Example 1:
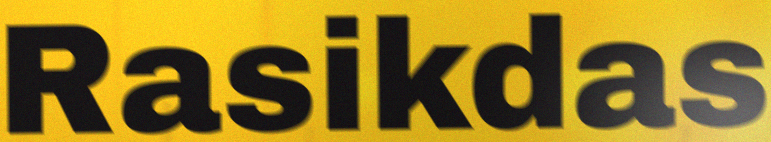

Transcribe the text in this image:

Rasikdas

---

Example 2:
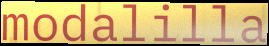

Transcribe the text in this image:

modalilla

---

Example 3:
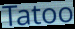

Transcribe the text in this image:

Tatoo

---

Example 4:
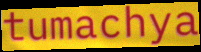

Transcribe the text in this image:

tumachya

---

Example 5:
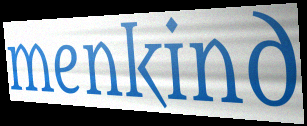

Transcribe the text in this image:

menkind